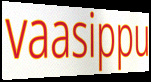
vaasippu